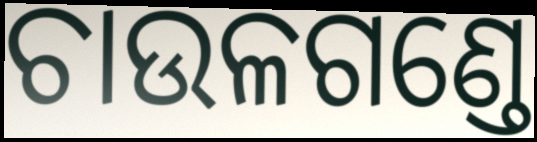
ଚାଉଳଗଣ୍ଡେ